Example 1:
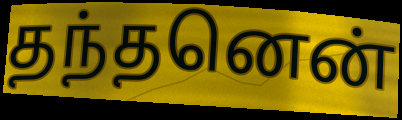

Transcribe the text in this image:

தந்தனென்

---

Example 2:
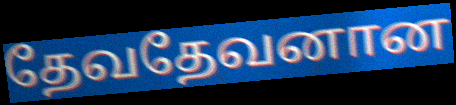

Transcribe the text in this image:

தேவதேவனான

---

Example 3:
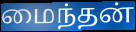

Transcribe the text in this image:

மைந்தன்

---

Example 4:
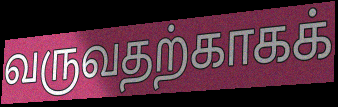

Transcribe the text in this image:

வருவதற்காகக்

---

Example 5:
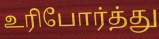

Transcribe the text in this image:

உரிபோர்த்து